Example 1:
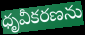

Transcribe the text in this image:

ధృవీకరణను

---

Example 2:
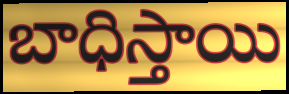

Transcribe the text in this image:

బాధిస్తాయి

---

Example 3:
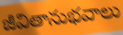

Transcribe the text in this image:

జీవితానుభవాలు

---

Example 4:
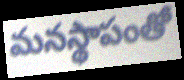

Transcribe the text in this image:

మనస్థాపంతో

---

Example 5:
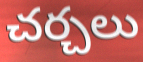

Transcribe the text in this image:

చర్చలు